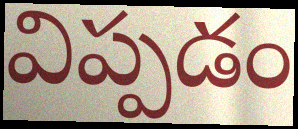
విప్పడం